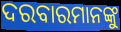
ଦରବାରମାନଙ୍କୁ